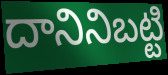
దానినిబట్టి